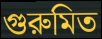
গুরুমিত